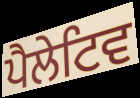
ਪੈਲੇਟਿਵ